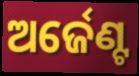
ଅର୍ଜେଣ୍ଟ